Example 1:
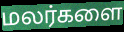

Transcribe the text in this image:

மலர்களை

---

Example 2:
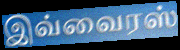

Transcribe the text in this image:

இவ்வைரஸ்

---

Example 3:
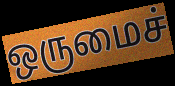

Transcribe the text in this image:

ஒருமைச்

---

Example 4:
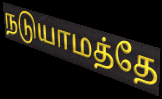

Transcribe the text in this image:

நடுயாமத்தே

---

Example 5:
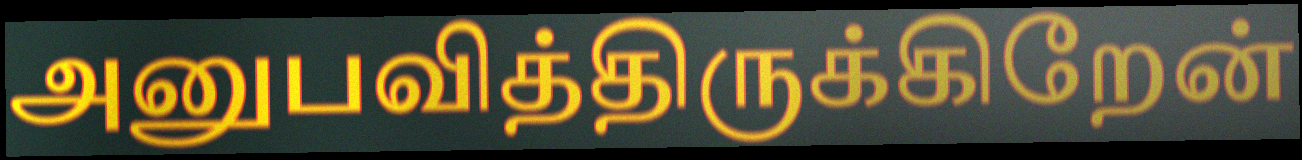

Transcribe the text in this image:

அனுபவித்திருக்கிறேன்